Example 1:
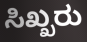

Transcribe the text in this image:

ಸಿಖ್ಖರು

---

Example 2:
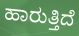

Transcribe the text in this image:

ಹಾರುತ್ತಿದೆ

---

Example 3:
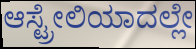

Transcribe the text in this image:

ಆಸ್ಟ್ರೇಲಿಯಾದಲ್ಲೇ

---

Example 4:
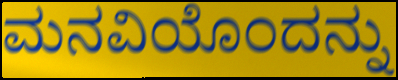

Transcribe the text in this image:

ಮನವಿಯೊಂದನ್ನು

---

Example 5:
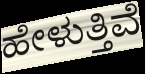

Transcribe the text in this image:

ಹೇಳುತ್ತಿವೆ